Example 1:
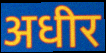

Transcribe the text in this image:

अधीर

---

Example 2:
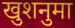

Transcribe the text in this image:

खुशनुमा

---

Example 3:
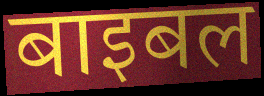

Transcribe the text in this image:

बाइबल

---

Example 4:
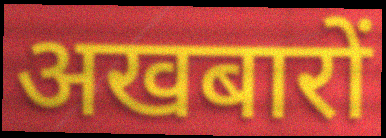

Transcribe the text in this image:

अखबारों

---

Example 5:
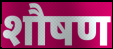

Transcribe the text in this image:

शौषण